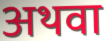
अथवा